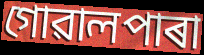
গোৱালপাৰা